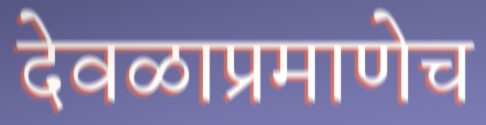
देवळाप्रमाणेच